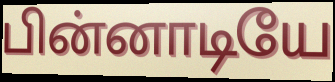
பின்னாடியே